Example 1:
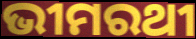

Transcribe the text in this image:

ଭୀମରଥୀ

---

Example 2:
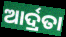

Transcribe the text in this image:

ଆର୍ଦ୍ରତା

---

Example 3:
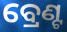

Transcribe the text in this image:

ବ୍ରେଣ୍ଟ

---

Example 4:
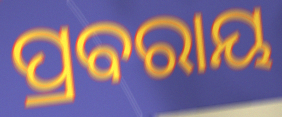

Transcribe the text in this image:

ପ୍ରବରାୟ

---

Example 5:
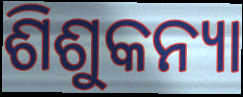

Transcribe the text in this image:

ଶିଶୁକନ୍ଯା